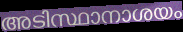
അടിസ്ഥാനാശയം